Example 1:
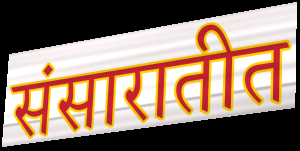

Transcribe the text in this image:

संसारातीत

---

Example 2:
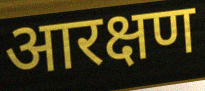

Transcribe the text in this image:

आरक्षण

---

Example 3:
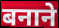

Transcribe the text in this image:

बनाने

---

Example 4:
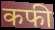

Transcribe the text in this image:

कफी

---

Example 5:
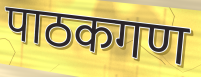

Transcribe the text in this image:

पाठकगण